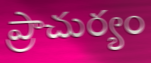
ప్రాచుర్యం